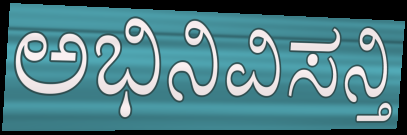
ಅಭಿನಿವಿಸನ್ತಿ